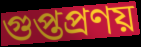
গুপ্তপ্রণয়